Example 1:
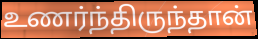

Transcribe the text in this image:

உணர்ந்திருந்தான்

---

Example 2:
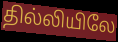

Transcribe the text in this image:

தில்லியிலே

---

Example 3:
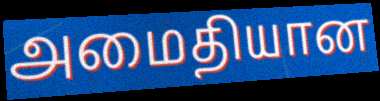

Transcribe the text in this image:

அமைதியான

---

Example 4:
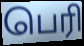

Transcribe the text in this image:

பெரி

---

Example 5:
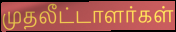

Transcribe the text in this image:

முதலீட்டாளர்கள்